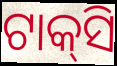
ଟାକ୍‍ସି